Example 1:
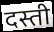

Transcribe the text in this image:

दस्ती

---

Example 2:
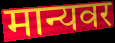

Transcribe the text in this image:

मान्‍यवर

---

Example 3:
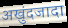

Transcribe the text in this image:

अखुंदजादा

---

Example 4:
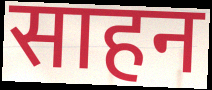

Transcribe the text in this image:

साहन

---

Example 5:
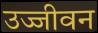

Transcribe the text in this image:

उज्जीवन